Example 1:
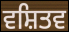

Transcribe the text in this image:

ਵਸ਼ਿਤਵ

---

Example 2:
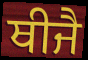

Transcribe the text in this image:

ਥੀਜੈ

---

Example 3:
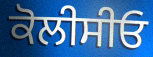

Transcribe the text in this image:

ਕੋਲੀਸੀਓ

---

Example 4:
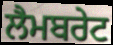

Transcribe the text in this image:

ਲੈਮਬਰੇਟ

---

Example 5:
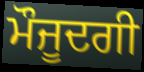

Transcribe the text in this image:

ਮੌਜੂਦਗੀ